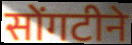
सोंगटीने